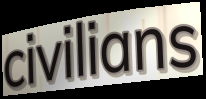
civilians